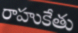
రాహుకేతు